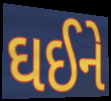
ઘઈને